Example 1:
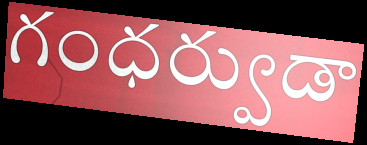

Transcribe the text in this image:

గంధర్వుడా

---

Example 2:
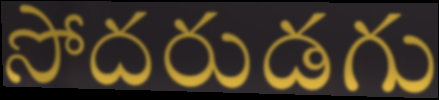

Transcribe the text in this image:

సోదరుడగు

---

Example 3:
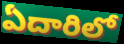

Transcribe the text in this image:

ఏదారిలో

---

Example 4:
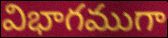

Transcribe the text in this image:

విభాగముగా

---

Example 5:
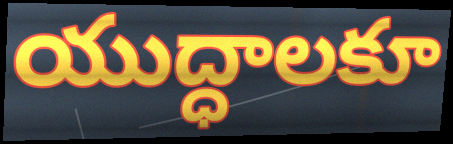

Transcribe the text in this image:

యుద్ధాలకూ